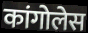
कांगोलेस